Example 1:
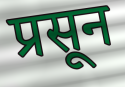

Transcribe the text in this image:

प्रसून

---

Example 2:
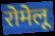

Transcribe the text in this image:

रोमेलू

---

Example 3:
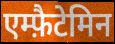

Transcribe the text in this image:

एम्फ़ैटेमिन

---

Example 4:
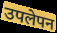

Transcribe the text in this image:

उपलेपन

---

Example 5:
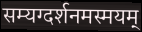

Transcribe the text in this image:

सम्यग्दर्शनमस्मयम्